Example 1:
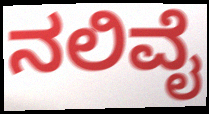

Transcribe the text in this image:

ನಲಿವೈ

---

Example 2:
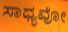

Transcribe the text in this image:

ಸಾಧ್ಯವೋ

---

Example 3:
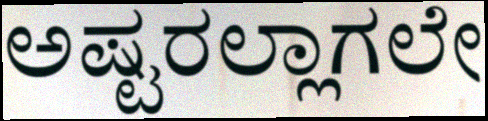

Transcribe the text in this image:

ಅಷ್ಟರಲ್ಲಾಗಲೇ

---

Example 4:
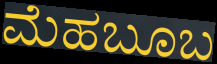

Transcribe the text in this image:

ಮೆಹಬೂಬ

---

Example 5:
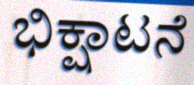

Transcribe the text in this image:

ಭಿಕ್ಷಾಟನೆ